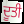
ਦੂਤੀ